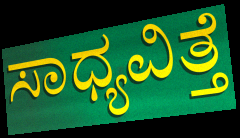
ಸಾಧ್ಯವಿತ್ತೆ